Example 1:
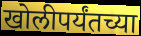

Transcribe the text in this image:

खोलीपर्यंतच्या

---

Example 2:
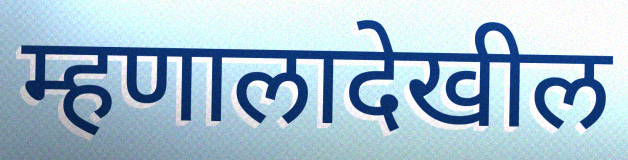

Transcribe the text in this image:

म्हणालादेखील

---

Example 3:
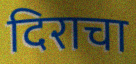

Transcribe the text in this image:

दिराचा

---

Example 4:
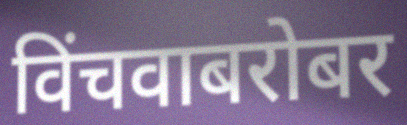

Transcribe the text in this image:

विंचवाबरोबर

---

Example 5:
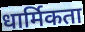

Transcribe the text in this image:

धार्मिकता